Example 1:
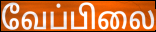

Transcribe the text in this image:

வேப்பிலை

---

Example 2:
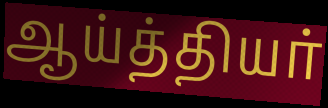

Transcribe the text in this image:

ஆய்த்தியர்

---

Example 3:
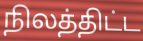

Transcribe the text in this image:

நிலத்திட்ட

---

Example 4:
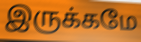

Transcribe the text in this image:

இருக்கமே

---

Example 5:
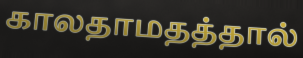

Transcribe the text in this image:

காலதாமதத்தால்